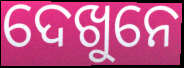
ଦେଖୁନେ